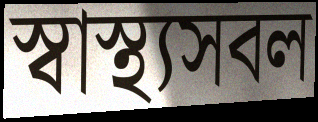
স্বাস্থ্যসবল